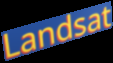
Landsat